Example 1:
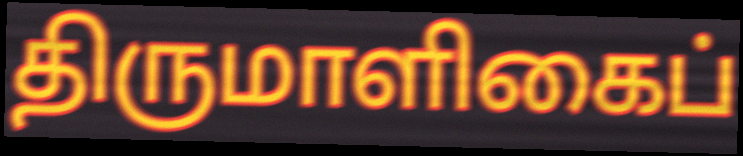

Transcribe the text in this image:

திருமாளிகைப்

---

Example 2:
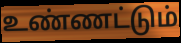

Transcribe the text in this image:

உண்ணட்டும்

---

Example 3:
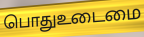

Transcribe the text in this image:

பொதுஉடைமை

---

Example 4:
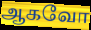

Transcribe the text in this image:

ஆகவோ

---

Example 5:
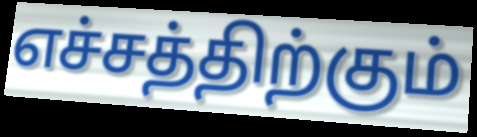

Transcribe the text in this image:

எச்சத்திற்கும்